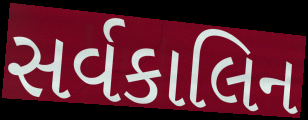
સર્વકાલિન